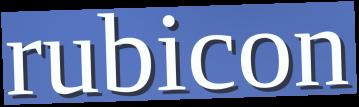
rubicon